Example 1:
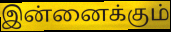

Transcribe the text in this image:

இன்னைக்கும்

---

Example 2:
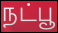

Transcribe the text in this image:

நட்பூ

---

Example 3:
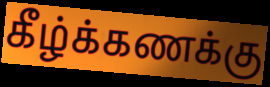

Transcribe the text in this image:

கீழ்க்கணக்கு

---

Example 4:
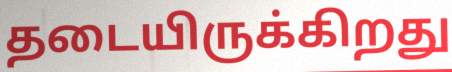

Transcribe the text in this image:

தடையிருக்கிறது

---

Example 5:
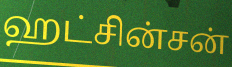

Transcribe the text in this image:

ஹட்சின்சன்